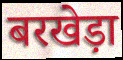
बरखेड़ा